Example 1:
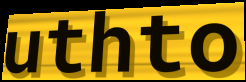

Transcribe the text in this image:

uthto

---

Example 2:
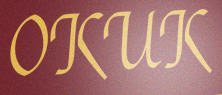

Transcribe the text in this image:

OKUK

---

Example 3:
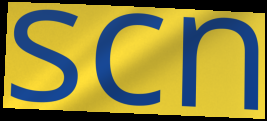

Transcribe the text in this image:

scn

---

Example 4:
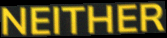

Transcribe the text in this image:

NEITHER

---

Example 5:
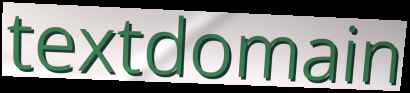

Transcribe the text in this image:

textdomain